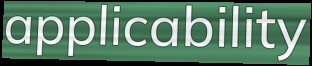
applicability